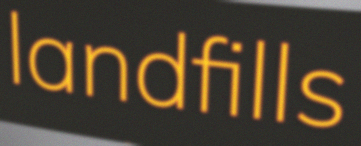
landfills